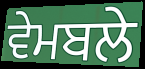
ਵੇਮਬਲੇ